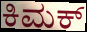
ಕಿಮಕ್